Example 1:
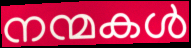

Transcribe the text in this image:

നന്മകൾ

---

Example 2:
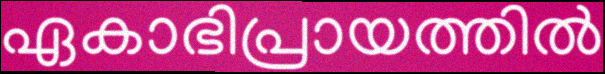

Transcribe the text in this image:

ഏകാഭിപ്രായത്തിൽ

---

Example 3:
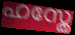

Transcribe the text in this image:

ഹസ്തേ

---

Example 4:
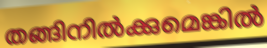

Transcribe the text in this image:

തങ്ങിനിൽക്കുമെങ്കിൽ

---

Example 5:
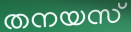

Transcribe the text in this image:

തനയസ്